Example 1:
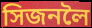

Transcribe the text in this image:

সিজনলৈ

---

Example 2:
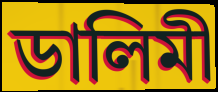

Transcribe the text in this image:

ডালিমী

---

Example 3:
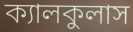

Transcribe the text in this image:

ক্যালকুলাস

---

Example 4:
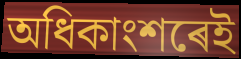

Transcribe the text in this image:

অধিকাংশৰেই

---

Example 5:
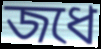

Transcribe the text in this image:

জধে